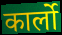
कार्लो